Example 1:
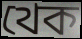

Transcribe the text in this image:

থেক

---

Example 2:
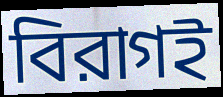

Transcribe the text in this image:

বিরাগই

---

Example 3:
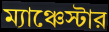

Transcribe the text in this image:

ম্যাঞ্চেস্টার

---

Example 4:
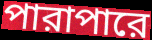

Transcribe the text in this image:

পারাপারে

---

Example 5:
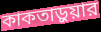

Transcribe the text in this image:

কাকতাড়ুয়ার